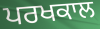
ਪਰਖਕਾਲ